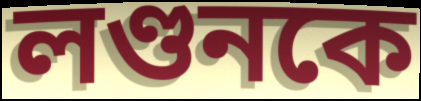
লণ্ডনকে